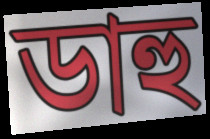
ডাহু